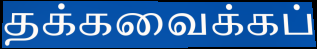
தக்கவைக்கப்